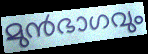
മുൻഭാഗവും